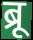
ब्रू